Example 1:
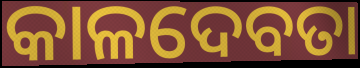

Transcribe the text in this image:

କାଳଦେବତା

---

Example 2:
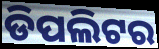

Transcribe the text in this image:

ଡିପଲିଟର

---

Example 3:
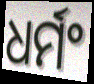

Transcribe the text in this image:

ଧର୍ମଂ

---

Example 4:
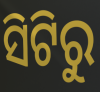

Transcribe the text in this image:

ସିଟିରୁ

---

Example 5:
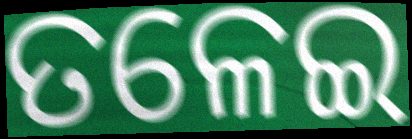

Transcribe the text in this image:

ତଳେଇ